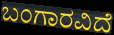
ಬಂಗಾರವಿದೆ